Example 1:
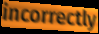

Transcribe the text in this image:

incorrectly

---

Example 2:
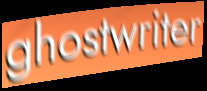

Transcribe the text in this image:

ghostwriter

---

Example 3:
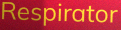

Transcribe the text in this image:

Respirator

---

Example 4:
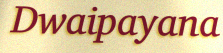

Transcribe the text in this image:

Dwaipayana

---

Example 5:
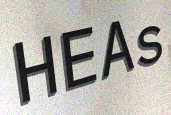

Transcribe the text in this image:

HEAs